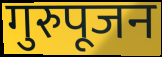
गुरुपूजन